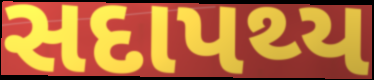
સદાપથ્ય